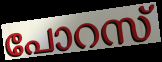
പോറസ്